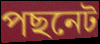
পছনেট